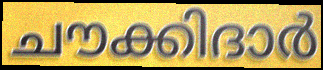
ചൗക്കിദാർ